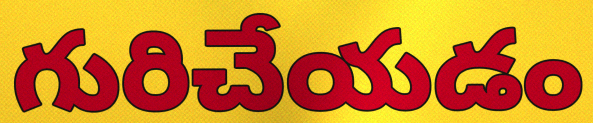
గురిచేయడం